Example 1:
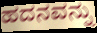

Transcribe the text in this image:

ಹದನವನ್ನು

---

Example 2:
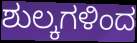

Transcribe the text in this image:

ಶುಲ್ಕಗಳಿಂದ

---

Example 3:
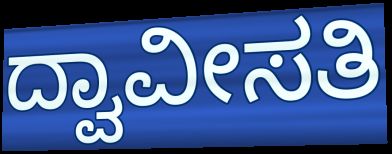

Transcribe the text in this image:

ದ್ವಾವೀಸತಿ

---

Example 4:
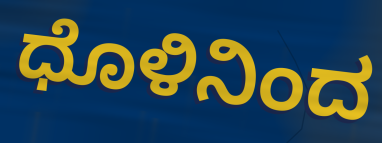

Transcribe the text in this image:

ಧೊಳಿನಿಂದ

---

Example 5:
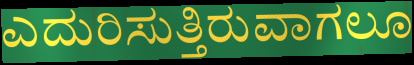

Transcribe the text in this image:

ಎದುರಿಸುತ್ತಿರುವಾಗಲೂ